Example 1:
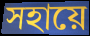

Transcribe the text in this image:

সহায়ে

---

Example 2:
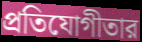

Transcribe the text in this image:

প্রতিযোগীতার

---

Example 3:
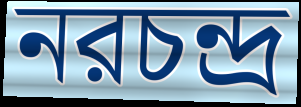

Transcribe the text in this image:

নরচন্দ্র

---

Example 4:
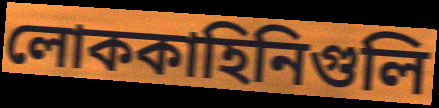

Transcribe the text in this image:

লোককাহিনিগুলি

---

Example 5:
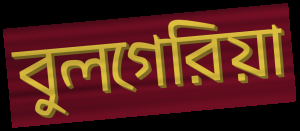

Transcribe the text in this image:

বুলগেরিয়া